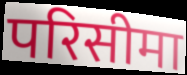
परिसीमा